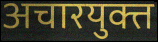
अचारयुक्त